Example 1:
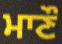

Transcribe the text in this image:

ਮਾਣੌ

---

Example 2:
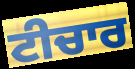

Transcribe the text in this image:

ਟੀਚਾਰ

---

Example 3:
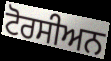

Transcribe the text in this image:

ਟੋਰਸੀਅਨ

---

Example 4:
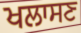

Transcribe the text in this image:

ਖਲਾਸਣ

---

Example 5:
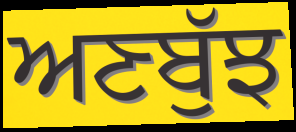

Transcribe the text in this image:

ਅਣਬੁੱਝ